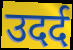
उदर्द